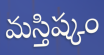
మస్తిష్కం